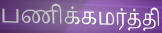
பணிக்கமர்த்தி